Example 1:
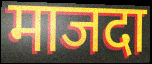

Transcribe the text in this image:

माजदा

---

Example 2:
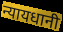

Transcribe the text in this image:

न्यायधानी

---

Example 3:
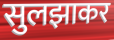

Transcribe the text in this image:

सुलझाकर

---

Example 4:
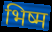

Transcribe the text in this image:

भिष्म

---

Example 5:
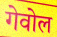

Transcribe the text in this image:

गेवोल